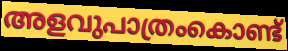
അളവുപാത്രംകൊണ്ട്